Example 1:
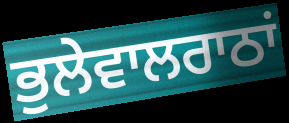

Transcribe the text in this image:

ਭੁਲੇਵਾਲਰਾਠਾਂ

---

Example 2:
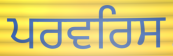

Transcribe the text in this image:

ਪਰਵਰਿਸ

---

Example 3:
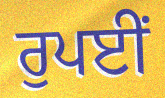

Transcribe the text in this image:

ਰੁਪਈਂ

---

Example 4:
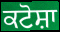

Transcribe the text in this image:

ਕਟੋਸ਼ਾ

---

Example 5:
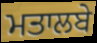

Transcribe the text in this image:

ਮਤਾਲਬੇ